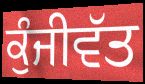
ਕੁੰਜੀਵੱਤ